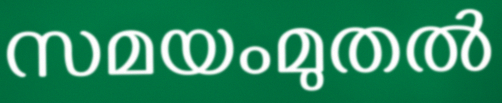
സമയംമുതൽ